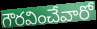
గౌరవించేవారో